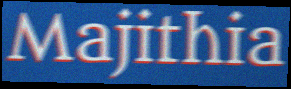
Majithia